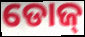
ଡୋଜ୍